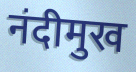
नंदीमुख